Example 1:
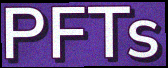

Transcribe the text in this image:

PFTs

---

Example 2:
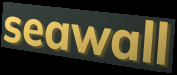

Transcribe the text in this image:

seawall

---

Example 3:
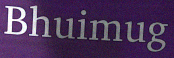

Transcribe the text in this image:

Bhuimug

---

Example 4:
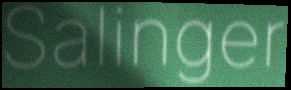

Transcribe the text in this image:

Salinger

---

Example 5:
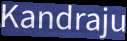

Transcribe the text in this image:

Kandraju